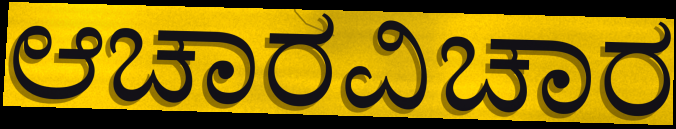
ಆಚಾರವಿಚಾರ